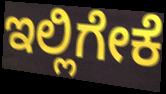
ಇಲ್ಲಿಗೇಕೆ